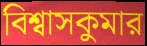
বিশ্বাসকুমার